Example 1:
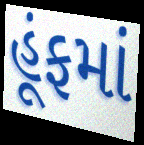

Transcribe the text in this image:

હૂંફમાં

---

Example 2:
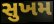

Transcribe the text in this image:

સુખમ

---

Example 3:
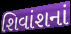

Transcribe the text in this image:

શિવાંશનાં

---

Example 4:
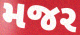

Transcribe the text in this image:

મજર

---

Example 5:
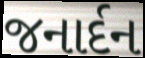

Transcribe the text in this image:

જનાર્દન